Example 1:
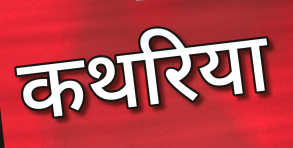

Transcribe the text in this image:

कथरिया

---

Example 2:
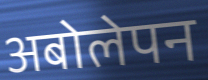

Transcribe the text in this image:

अबोलेपन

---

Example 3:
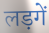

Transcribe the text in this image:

लड़गें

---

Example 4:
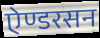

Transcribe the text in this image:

ऐण्डरसन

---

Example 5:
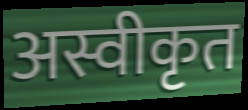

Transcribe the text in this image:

अस्वीकृत